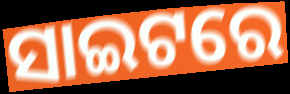
ସାଇଟରେ